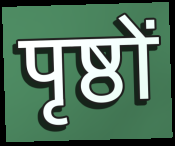
पृष्ठों